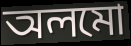
অলমো